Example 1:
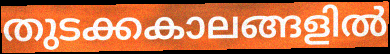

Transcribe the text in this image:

തുടക്കകാലങ്ങളിൽ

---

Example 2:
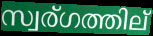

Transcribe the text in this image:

സ്വര്ഗത്തില്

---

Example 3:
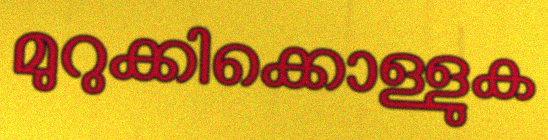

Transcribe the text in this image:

മുറുക്കിക്കൊള്ളുക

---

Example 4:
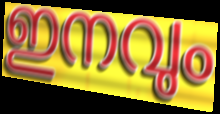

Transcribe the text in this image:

ഇനവും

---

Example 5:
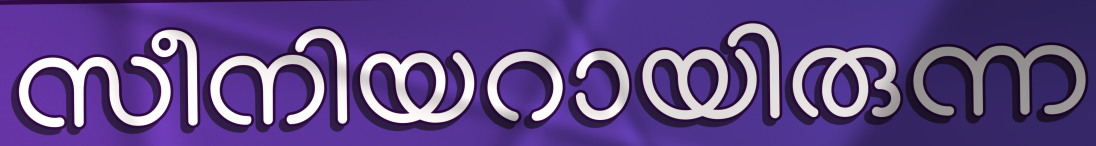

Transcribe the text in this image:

സീനിയറായിരുന്ന